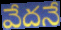
వేదనే